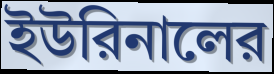
ইউরিনালের